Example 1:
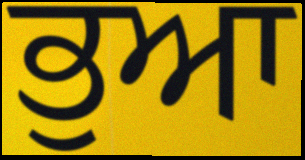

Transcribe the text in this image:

ਭੁਆ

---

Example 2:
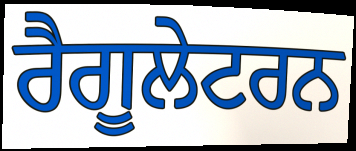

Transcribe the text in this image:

ਰੈਗੂਲੇਟਰਨ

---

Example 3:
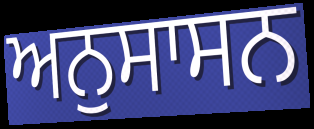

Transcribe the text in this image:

ਅਨੁਸਾਸਨ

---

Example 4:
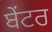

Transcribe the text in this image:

ਬੇਂਟਰ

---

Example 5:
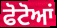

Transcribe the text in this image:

ਫੋਟੋਆਂ